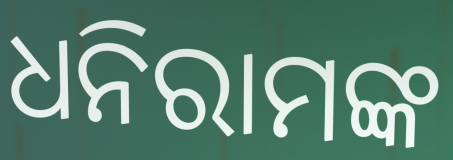
ଧନିରାମଙ୍କ